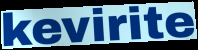
kevirite